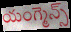
యంగ్మెన్స్